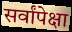
सर्वांपेक्षा